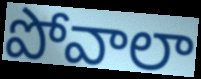
పోవాలా